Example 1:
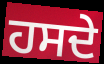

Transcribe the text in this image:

ਹਸਦੇ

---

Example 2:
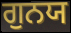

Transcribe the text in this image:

ਗੁਨਯ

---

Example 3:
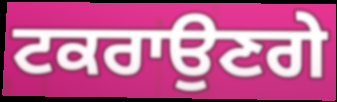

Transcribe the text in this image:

ਟਕਰਾਉਣਗੇ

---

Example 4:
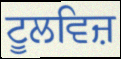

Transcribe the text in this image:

ਟੂਲਵਿਜ਼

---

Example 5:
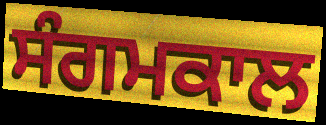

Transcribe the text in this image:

ਸੰਗਮਕਾਲ